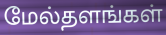
மேல்தளங்கள்